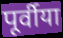
पूर्वीया